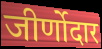
जीर्णोदार